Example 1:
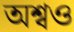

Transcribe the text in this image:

অশ্বও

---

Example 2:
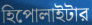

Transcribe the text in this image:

হিপোলাইটার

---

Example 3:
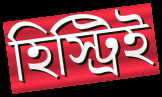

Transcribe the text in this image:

হিস্ট্রিই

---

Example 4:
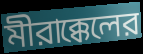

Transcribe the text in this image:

মীরাক্কেলের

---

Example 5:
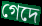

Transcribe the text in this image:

গেদে